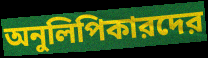
অনুলিপিকারদের